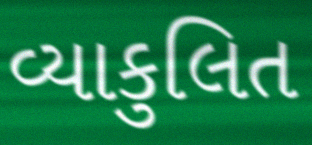
વ્યાકુલિત